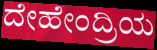
ದೇಹೇಂದ್ರಿಯ